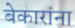
बेकारांना